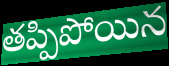
తప్పిపోయిన